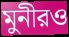
মুনীরও